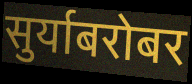
सुर्याबरोबर